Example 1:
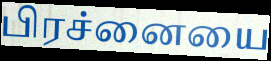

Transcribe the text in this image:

பிரச்னையை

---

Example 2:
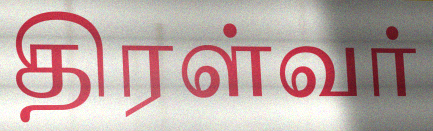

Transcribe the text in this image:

திரள்வர்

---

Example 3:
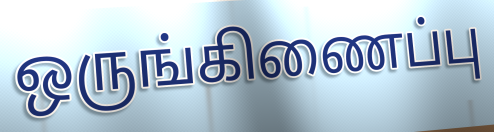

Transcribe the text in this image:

ஒருங்கிணைப்பு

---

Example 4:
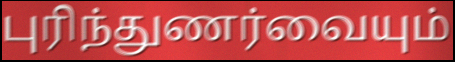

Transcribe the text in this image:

புரிந்துணர்வையும்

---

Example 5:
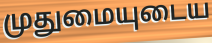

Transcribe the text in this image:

முதுமையுடைய